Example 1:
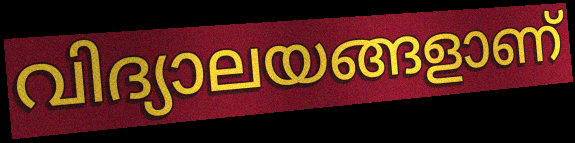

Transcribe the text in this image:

വിദ്യാലയങ്ങളാണ്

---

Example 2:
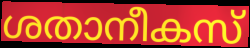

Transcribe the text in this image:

ശതാനീകസ്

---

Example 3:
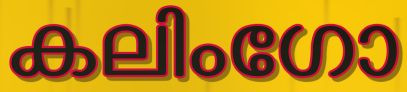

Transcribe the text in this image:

കലിംഗോ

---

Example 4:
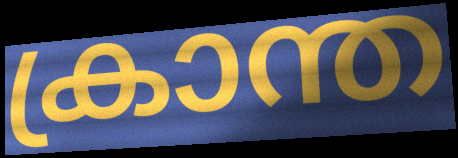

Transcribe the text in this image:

ക്രാന്ത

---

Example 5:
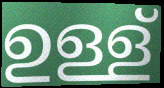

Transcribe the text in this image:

ഉള്ള്